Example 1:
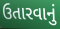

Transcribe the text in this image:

ઉતારવાનું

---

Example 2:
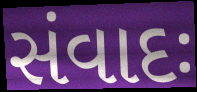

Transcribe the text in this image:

સંવાદઃ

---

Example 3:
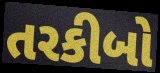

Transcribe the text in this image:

તરકીબો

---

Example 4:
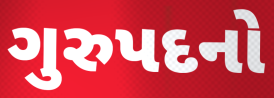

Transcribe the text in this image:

ગુરુપદનો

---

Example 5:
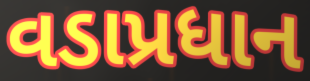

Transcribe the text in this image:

વડાપ્રધાન